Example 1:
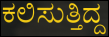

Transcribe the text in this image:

ಕಲಿಸುತ್ತಿದ್ದ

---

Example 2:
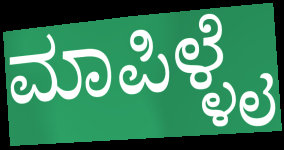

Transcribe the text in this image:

ಮಾಪಿಳ್ಳೈ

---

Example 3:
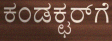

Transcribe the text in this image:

ಕಂಡಕ್ಟರ್‌ಗೆ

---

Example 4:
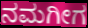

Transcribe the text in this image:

ನಮಗೀಗ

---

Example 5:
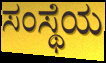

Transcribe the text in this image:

ಸಂಸ್ಥೆಯ